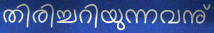
തിരിച്ചറിയുന്നവനു്